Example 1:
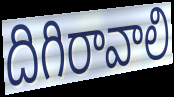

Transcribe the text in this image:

దిగిరావాలి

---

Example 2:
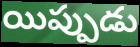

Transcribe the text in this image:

యిప్పుడు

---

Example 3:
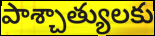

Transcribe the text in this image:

పాశ్చాత్యులకు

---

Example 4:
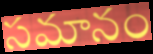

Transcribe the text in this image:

సమానం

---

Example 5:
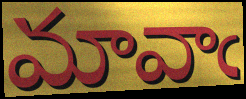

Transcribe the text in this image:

మావాఁ